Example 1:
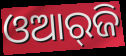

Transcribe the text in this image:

ଓଆର୍‌ଜି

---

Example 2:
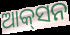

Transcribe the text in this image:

ଆକ୍‌ସନ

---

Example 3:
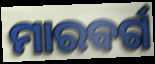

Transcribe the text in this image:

ମାରବର୍ଗ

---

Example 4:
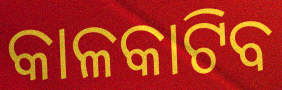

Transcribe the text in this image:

କାଳକାଟିବ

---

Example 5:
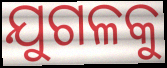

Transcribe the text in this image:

ଯୁଗଳକୁ